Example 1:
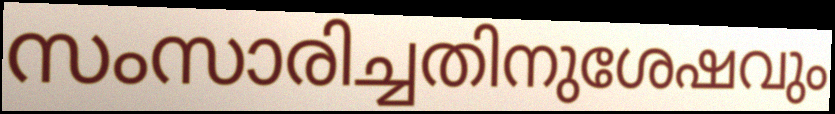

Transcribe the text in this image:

സംസാരിച്ചതിനുശേഷവും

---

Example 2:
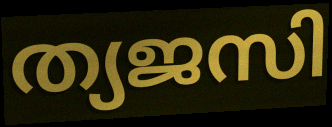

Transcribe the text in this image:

ത്യജസി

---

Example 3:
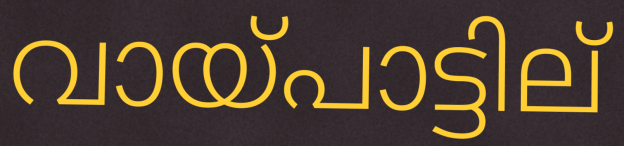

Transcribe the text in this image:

വായ്പാട്ടില്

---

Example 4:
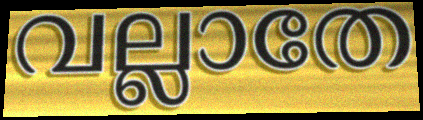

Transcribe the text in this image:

വല്ലാതേ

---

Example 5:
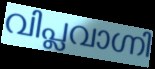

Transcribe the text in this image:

വിപ്ലവാഗ്നി